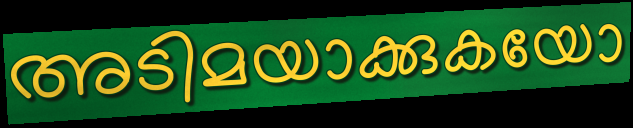
അടിമയാക്കുകയോ